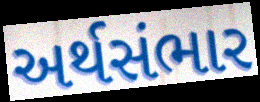
અર્થસંભાર